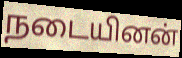
நடையினன்